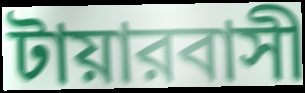
টায়ারবাসী